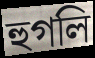
হুগলি